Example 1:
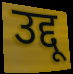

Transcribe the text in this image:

उद्दू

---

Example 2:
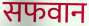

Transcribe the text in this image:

सफवान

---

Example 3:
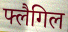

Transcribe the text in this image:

फ्लैगिल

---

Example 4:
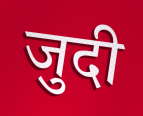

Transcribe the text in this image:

जुदी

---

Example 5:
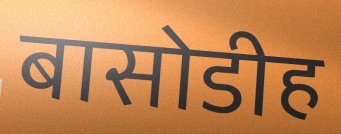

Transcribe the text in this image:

बासोडीह